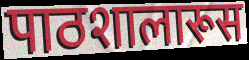
पाठशालारूस